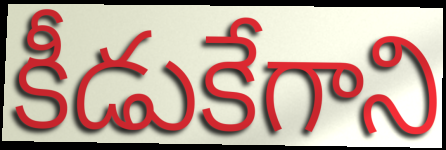
కీడుకేగాని